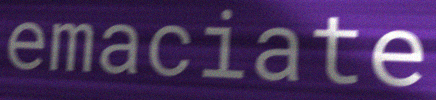
emaciate